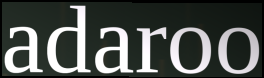
adaroo